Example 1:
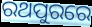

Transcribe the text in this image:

ରଥପୁରରେ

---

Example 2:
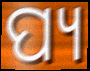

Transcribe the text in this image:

ପ୍ୟ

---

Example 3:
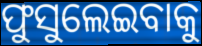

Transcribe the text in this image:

ଫୁସୁଲେଇବାକୁ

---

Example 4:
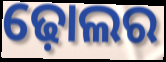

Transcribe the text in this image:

ଢ଼ୋଲର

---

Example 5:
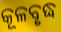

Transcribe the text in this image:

କୂଳବୃଦ୍ଧ